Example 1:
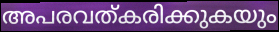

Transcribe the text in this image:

അപരവത്കരിക്കുകയും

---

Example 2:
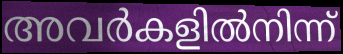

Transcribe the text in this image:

അവർകളിൽനിന്ന്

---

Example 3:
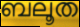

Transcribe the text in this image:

ബലൂത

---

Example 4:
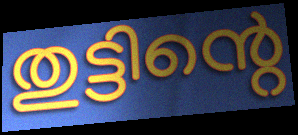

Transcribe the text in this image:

തുട്ടിന്റെ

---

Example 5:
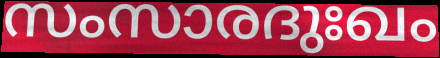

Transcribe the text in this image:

സംസാരദുഃഖം